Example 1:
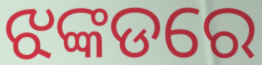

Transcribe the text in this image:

ଝଙ୍କଡରେ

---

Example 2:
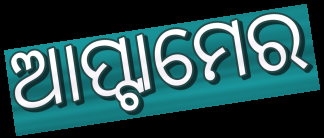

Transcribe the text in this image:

ଆପ୍ଟାମେର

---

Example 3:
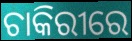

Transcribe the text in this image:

ଚାକିରୀରେ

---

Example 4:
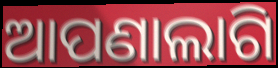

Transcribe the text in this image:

ଆପଣାଲାଗି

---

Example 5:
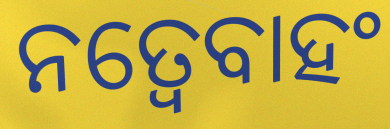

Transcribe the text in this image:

ନତ୍ୱେବାହଂ